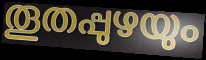
തൂതപ്പുഴയും